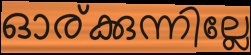
ഓര്ക്കുന്നില്ലേ